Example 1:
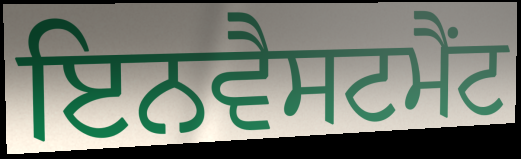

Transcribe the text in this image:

ਇਨਵੈਸਟਮੈਂਟ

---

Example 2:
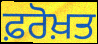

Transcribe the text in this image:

ਫ਼ਰੋਖ਼ਤ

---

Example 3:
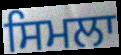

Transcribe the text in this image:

ਸਿਮਲਾ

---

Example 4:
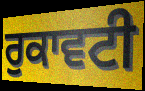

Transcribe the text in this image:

ਰੁਕਾਵਟੀ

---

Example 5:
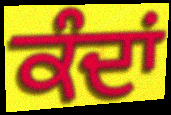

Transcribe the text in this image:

ਕੰਦਾਂ